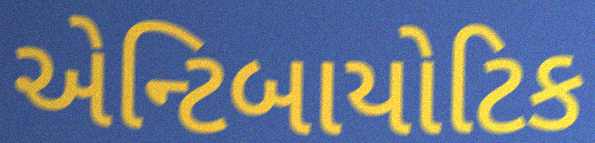
એન્ટિબાયોટિક